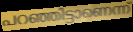
പറഞ്ഞിട്ടാണെന്ന്